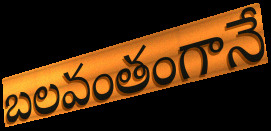
బలవంతంగానే